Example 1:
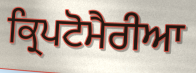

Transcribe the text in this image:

ਕ੍ਰਿਪਟੋਮੈਰੀਆ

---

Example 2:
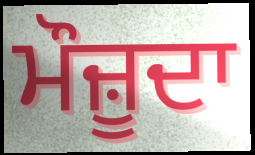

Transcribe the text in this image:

ਮੌਜ਼ੂਦਾ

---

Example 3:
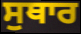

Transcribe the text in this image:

ਸੁਥਾਰ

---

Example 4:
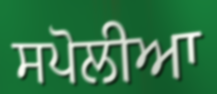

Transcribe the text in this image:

ਸਪੋਲੀਆ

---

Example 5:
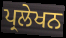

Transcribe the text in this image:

ਪ੍ਰਲੇਖਨ